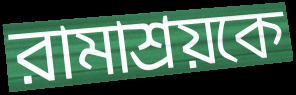
রামাশ্রয়কে